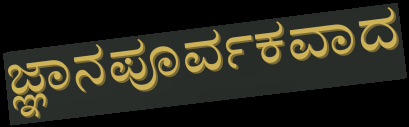
ಜ್ಞಾನಪೂರ್ವಕವಾದ